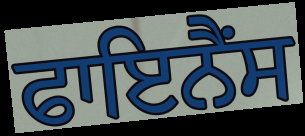
ਫਾਇਨੈਂਸ